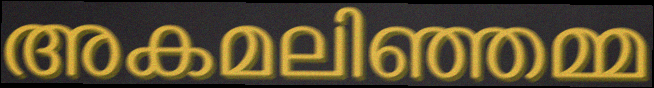
അകമലിഞ്ഞമ്മ